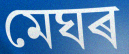
মেঘৰ